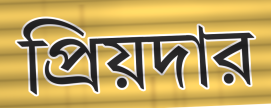
প্রিয়দার